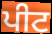
ਪੀਟ